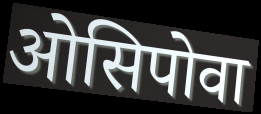
ओसिपोवा